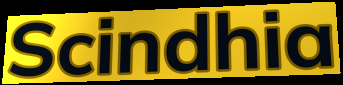
Scindhia